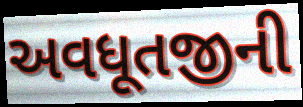
અવધૂતજીની